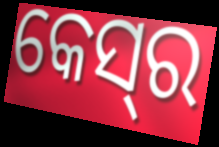
କେସ୍‌ର